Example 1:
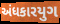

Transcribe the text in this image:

અંધકારયુગ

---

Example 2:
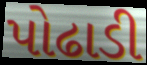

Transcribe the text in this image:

પોઢાડી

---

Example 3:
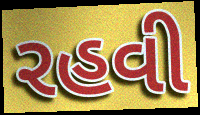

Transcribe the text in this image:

રહવી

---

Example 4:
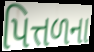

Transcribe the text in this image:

પિત્તળના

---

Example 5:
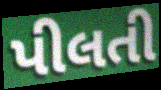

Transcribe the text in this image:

પીલતી